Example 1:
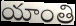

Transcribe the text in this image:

యాంతి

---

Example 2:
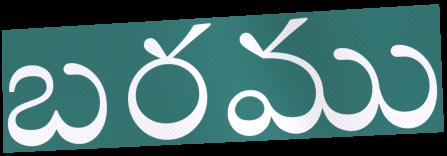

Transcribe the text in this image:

బరము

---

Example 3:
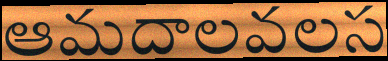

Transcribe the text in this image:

ఆమదాలవలస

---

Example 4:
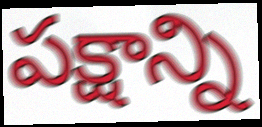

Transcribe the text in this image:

పక్షాన్ని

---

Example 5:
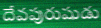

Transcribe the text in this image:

దేవపురుషుడు